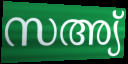
സഅ്യ്